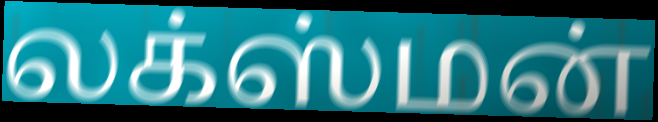
லக்ஸ்மன்